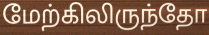
மேற்கிலிருந்தோ